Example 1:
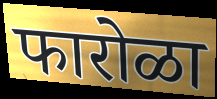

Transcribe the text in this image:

फारोळा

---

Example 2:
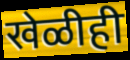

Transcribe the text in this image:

खेळीही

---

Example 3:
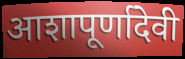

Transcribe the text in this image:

आशापूर्णादेवी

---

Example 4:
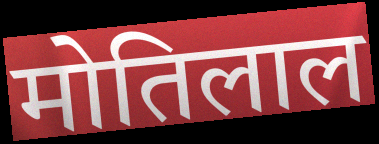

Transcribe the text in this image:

मोतिलाल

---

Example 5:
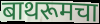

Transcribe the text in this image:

बाथरूमचा